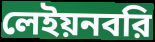
লেইয়নবরি